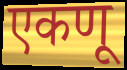
एकणू